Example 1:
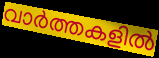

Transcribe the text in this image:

വാർത്തകളിൽ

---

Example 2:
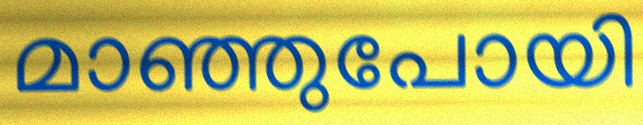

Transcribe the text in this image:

മാഞ്ഞുപോയി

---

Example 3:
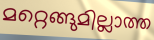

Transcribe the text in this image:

മറ്റെങ്ങുമില്ലാത്ത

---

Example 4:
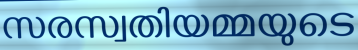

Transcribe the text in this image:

സരസ്വതിയമ്മയുടെ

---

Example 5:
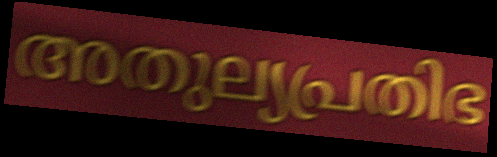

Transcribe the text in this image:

അതുല്യപ്രതിഭ